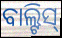
ବାଲ୍ଟିସ୍